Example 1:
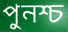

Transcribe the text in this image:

পুনশ্চ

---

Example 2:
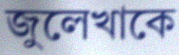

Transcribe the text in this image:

জুলেখাকে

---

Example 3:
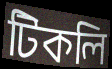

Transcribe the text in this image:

টিকলি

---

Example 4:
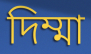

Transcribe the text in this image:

দিম্মা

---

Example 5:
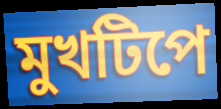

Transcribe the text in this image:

মুখটিপে